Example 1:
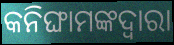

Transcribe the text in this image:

କନିଙ୍ଘାମଙ୍କଦ୍ଵାରା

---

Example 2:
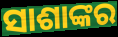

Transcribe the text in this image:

ସାଶାଙ୍କର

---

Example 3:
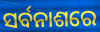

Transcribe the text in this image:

ସର୍ବନାଶରେ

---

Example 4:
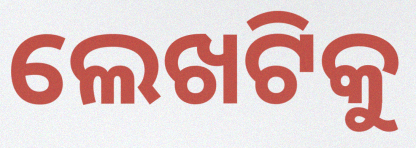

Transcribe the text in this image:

ଲେଖଟିକୁ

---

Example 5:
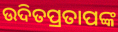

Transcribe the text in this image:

ଉଦିତପ୍ରତାପଙ୍କ